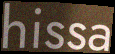
hissa